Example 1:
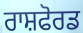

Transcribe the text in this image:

ਰਾਸ਼ਫੋਰਡ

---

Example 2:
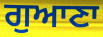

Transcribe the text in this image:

ਗੁਆਣਾ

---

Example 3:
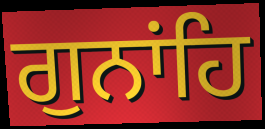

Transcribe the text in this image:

ਗੁਨਾਂਹਿ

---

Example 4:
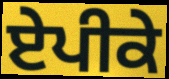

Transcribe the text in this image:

ਏਪੀਕੇ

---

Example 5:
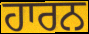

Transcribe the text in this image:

ਹਾਰਨ